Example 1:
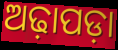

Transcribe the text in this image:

ଅଢ଼ାପଡ଼ା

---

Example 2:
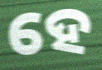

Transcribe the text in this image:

ହେ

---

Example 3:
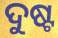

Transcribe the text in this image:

ଦୁଷ୍ଟ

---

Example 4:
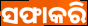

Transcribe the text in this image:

ସଫାକରି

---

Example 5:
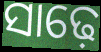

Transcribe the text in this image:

ସାଢ଼େ